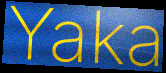
Yaka